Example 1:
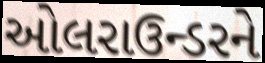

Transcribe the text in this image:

ઓલરાઉન્ડરને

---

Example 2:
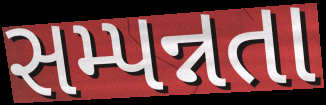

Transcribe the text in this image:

સમ્પન્નતા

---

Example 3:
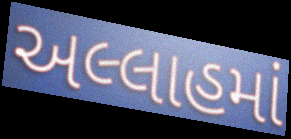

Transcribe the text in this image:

અલ્લાહમાં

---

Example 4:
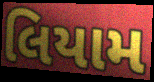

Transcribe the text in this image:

લિયામ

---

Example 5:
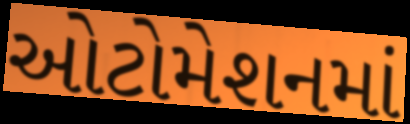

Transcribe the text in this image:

ઓટોમેશનમાં